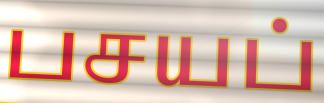
பசயப்